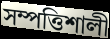
সম্পত্তিশালী